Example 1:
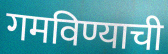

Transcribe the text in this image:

गमविण्याची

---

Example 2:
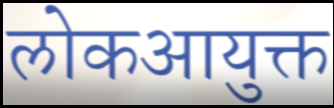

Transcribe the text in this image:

लोकआयुक्त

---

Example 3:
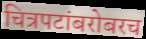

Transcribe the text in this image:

चित्रपटांबरोबरच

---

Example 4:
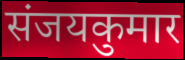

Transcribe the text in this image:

संजयकुमार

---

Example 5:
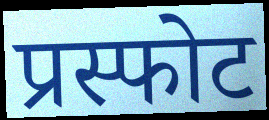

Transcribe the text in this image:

प्रस्फोट